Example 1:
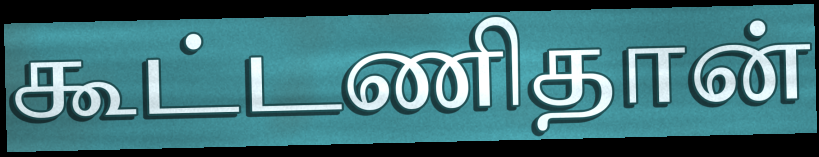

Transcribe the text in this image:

கூட்டணிதான்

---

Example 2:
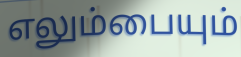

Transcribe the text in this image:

எலும்பையும்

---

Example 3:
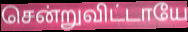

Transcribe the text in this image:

சென்றுவிட்டாயே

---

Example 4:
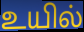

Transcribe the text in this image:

உயில்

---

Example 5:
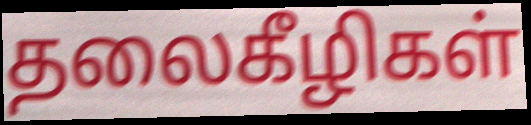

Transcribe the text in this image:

தலைகீழிகள்